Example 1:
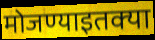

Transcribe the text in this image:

मोजण्याइतक्या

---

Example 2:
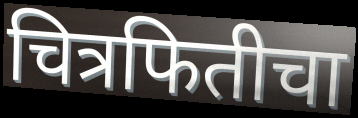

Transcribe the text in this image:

चित्रफितीचा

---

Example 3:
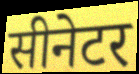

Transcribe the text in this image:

सीनेटर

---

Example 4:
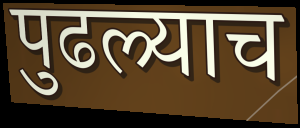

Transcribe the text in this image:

पुढल्याच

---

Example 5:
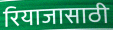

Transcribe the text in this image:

रियाजासाठी